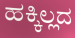
ಹಕ್ಕಿಲ್ಲದ